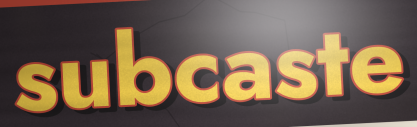
subcaste